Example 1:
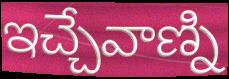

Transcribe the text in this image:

ఇచ్చేవాణ్ని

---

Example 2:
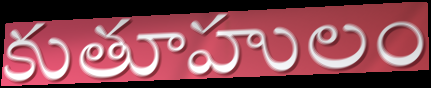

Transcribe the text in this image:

కుతూహులం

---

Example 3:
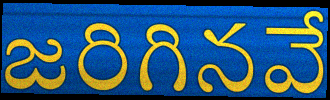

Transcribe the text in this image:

జరిగినవే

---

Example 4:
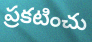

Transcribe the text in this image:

ప్రకటించు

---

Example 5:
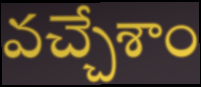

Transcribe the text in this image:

వచ్చేశాం